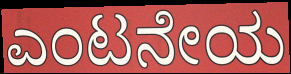
ಎಂಟನೇಯ